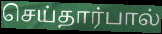
செய்தார்பால்